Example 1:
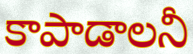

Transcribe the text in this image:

కాపాడాలనీ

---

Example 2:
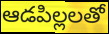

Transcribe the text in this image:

ఆడపిల్లలతో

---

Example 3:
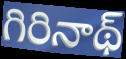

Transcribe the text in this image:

గిరినాథ్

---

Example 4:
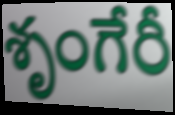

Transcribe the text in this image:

శృంగేరీ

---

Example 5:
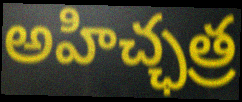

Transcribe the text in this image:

అహిచ్ఛత్ర